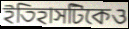
ইতিহাসটিকেও